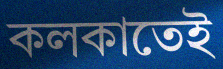
কলকাতেই